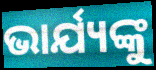
ଭାର୍ଯ୍ୟଙ୍କୁ